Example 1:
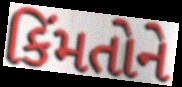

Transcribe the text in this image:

કિંમતોને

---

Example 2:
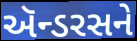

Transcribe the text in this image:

ઍન્ડરસને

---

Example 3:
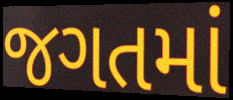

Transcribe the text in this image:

જગતમાં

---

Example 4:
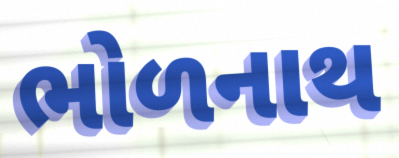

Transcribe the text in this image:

ભોળનાથ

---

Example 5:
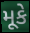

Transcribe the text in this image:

મૂકે